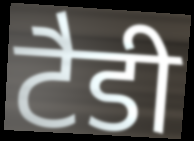
टैडी